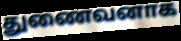
துணைவனாக